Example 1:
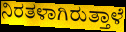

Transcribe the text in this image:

ನಿರತಳಾಗಿರುತ್ತಾಳೆ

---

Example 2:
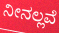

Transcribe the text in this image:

ನೀನಲ್ಲವೆ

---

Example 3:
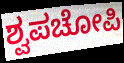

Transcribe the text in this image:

ಶ್ವಪಚೋಪಿ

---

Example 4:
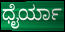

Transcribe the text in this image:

ಧೈರ್ಯಾ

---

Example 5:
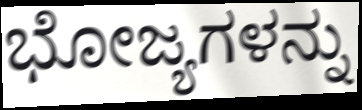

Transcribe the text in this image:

ಭೋಜ್ಯಗಳನ್ನು